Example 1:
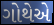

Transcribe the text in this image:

ગોથેએ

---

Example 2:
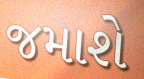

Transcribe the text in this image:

જમાશે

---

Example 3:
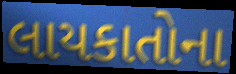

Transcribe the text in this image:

લાયકાતોના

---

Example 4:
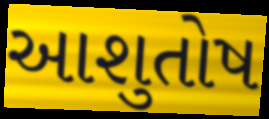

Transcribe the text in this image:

આશુતોષ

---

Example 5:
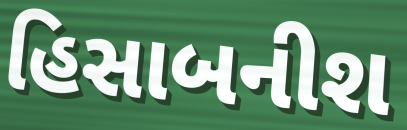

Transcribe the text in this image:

હિસાબનીશ